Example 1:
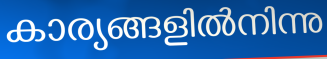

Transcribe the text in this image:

കാര്യങ്ങളിൽനിന്നു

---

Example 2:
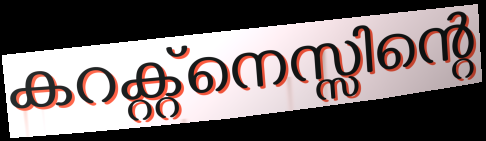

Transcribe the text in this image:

കറക്റ്റ്നെസ്സിന്റെ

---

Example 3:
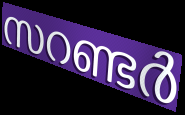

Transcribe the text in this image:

സറണ്ടർ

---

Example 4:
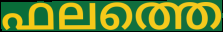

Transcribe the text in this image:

ഫലത്തെ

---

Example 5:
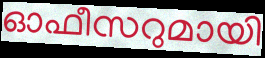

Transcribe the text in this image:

ഓഫീസറുമായി